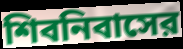
শিবনিবাসের